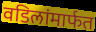
वडिलांमार्फत